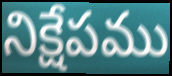
నిక్షేపము